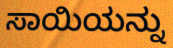
ಸಾಯಿಯನ್ನು